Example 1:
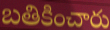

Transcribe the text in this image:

బతికించారు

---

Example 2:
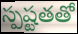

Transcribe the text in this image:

స్పష్టతతో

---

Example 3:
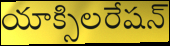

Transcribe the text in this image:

యాక్సిలరేషన్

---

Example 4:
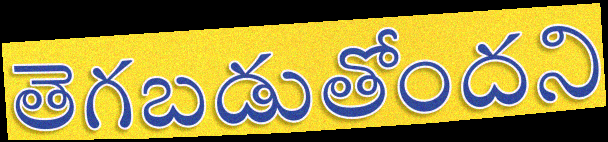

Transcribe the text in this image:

తెగబడుతోందని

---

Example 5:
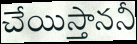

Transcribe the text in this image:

చేయిస్తాననీ